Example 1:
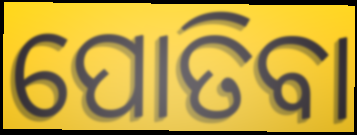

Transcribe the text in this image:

ପୋତିବା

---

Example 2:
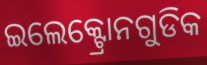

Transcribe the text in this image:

ଇଲେକ୍ଟ୍ରୋନଗୁଡିକ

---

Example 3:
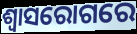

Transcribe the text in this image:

ଶ୍ଵାସରୋଗରେ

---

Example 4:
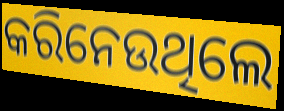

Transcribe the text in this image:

କରିନେଉଥିଲେ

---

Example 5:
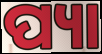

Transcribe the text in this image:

ପ୍ୟା